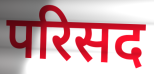
परिसद